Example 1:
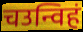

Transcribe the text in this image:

चउन्विहं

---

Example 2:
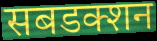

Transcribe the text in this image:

सबडक्शन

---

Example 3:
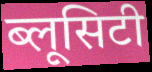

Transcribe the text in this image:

ब्लूसिटी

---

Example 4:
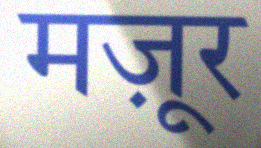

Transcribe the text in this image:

मज़ूर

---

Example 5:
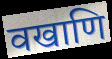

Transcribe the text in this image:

वखाणि